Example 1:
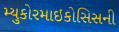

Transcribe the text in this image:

મ્યુકોરમાઇકોસિસની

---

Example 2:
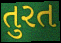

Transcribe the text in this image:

તુરત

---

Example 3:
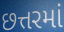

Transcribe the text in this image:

છત્તરમાં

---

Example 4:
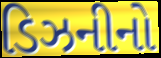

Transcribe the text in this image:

ડિઝનીનો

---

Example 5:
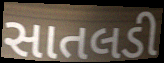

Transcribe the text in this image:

સાતલડી